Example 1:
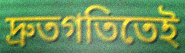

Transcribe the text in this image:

দ্রুতগতিতেই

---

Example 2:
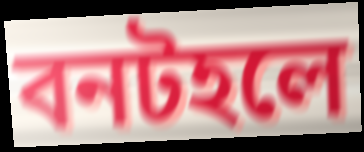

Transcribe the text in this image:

বনটহলে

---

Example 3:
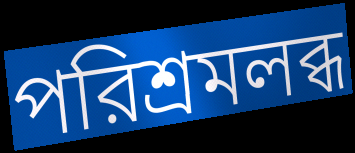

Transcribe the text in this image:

পরিশ্রমলব্ধ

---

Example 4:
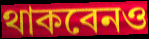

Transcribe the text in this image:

থাকবেনও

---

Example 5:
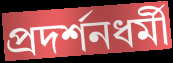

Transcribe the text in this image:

প্রদর্শনধর্মী